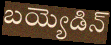
బయ్యెడిన్